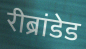
रीब्रांडेड